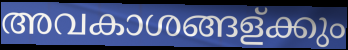
അവകാശങ്ങള്ക്കും